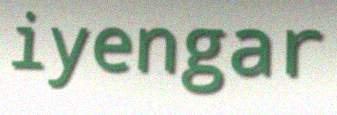
iyengar